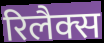
रिलैक्‍स